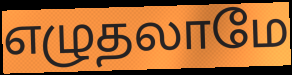
எழுதலாமே